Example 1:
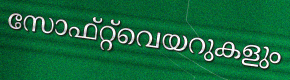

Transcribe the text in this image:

സോഫ്റ്റ്‌വെയറുകളും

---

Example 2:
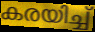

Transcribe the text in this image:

കരയിച്ച്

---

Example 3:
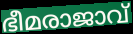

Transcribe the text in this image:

ഭീമരാജാവ്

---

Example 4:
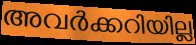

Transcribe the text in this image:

അവർക്കറിയില്ല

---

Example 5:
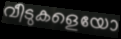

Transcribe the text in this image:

വീടുകളെയോ